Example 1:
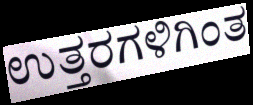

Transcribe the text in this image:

ಉತ್ತರಗಳಿಗಿಂತ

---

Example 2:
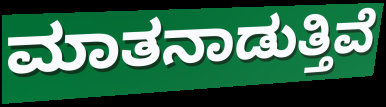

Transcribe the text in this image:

ಮಾತನಾಡುತ್ತಿವೆ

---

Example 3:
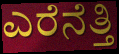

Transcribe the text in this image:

ಎರೆನೆತ್ತಿ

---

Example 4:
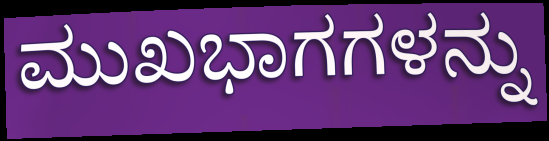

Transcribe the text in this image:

ಮುಖಭಾಗಗಳನ್ನು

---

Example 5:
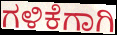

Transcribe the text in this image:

ಗಳಿಕೆಗಾಗಿ